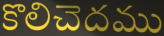
కొలిచెదము